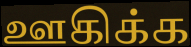
ஊகிக்க